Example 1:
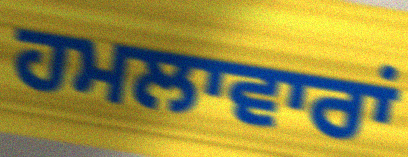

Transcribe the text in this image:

ਹਮਲਾਵਾਰਾਂ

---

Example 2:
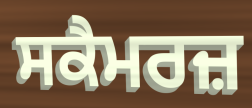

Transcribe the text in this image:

ਸਕੈਮਰਜ਼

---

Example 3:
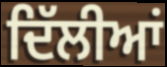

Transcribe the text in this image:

ਦਿੱਲੀਆਂ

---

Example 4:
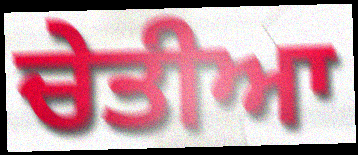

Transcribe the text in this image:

ਚੇਤੀਆ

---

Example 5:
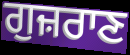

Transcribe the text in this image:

ਗੁਜ਼ਰਾਣ